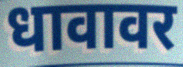
धावावर